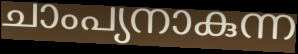
ചാംപ്യനാകുന്ന